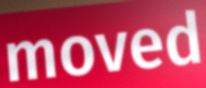
moved